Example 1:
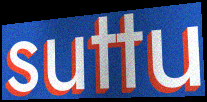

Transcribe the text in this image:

suttu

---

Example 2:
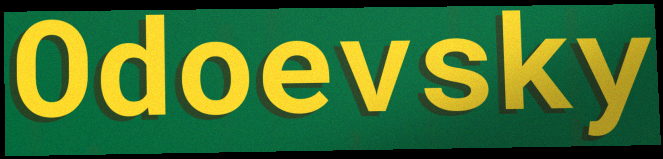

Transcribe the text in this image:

Odoevsky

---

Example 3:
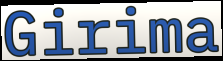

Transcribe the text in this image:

Girima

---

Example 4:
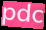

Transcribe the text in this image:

pdc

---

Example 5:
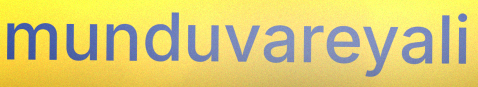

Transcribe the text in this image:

munduvareyali